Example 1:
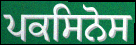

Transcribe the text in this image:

ਪਕਸਿਨੋਸ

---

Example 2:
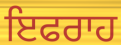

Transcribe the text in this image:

ਇਫਰਾਹ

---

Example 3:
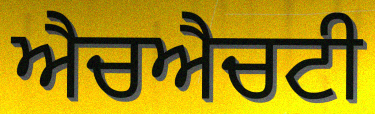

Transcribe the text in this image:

ਐਚਐਚਟੀ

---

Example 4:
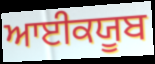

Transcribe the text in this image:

ਆਈਕਯੂਬ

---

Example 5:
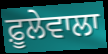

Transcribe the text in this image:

ਫ਼ੂਲੇਵਾਲਾ